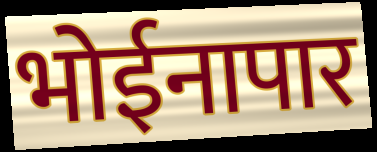
भोईनापार